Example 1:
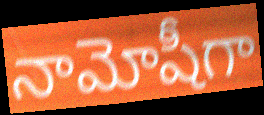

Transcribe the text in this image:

నామోషీగా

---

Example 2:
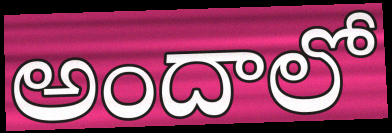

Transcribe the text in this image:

అందాలో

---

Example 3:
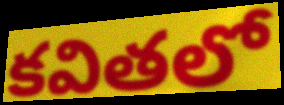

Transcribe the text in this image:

కవితలో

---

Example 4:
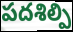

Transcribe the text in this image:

పదశిల్పి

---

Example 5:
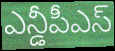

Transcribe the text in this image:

ఎన్డీపీఎస్